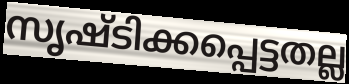
സൃഷ്ടിക്കപ്പെട്ടതല്ല